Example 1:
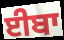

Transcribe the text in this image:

ਈਬਾ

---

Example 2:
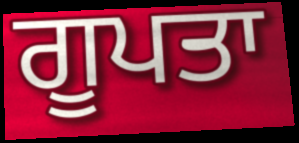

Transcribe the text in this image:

ਗੂਪਤਾ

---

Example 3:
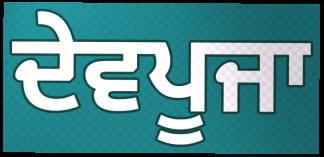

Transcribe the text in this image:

ਦੇਵਪੂਜਾ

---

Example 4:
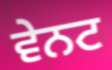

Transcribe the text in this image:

ਵੇਨਟ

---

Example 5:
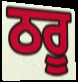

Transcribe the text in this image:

ਠਰੂ